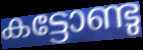
കട്ടോണ്ടു